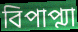
বিপাপ্মা